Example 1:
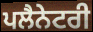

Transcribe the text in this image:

ਪਲੈਨੇਟਰੀ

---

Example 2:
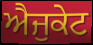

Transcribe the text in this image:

ਐਜੁਕੇਟ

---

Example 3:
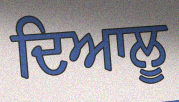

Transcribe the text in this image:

ਦਿਆਲੂ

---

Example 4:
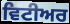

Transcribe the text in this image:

ਵਿਟੀਅਰ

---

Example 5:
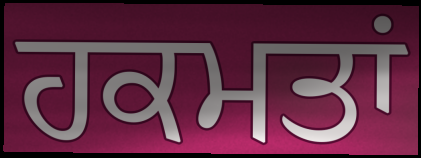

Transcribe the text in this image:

ਹਕਮਤਾਂ